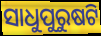
ସାଧୁପୁରୁଷଟି